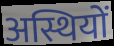
अस्थियों